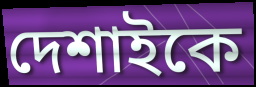
দেশাইকে